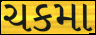
ચકમા